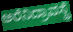
ಅರೆನಿದ್ರಾವಸ್ಥೆ